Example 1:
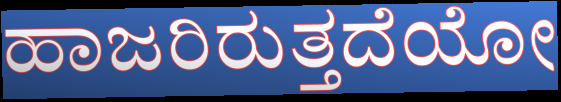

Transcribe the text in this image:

ಹಾಜರಿರುತ್ತದೆಯೋ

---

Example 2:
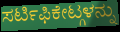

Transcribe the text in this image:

ಸರ್ಟಿಫಿಕೇಟ್ಗಳನ್ನು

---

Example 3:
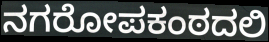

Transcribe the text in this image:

ನಗರೋಪಕಂಠದಲಿ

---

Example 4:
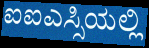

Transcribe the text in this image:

ಐಐಎಸ್ಸಿಯಲ್ಲಿ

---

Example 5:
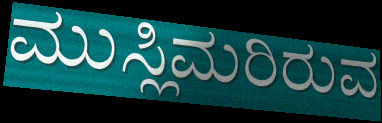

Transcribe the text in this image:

ಮುಸ್ಲಿಮರಿರುವ